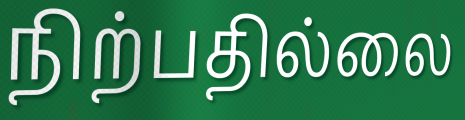
நிற்பதில்லை